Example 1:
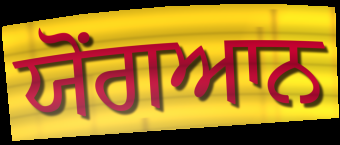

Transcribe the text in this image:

ਯੋਂਗਆਨ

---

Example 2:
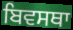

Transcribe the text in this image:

ਬਿਵਸਥਾ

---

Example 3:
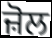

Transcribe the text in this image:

ਜ਼ੋਲ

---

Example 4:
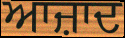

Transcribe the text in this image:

ਆਜ਼ਾਦ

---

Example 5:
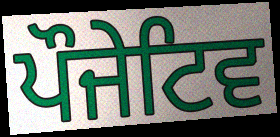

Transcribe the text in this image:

ਪੌਜੇਟਿਵ